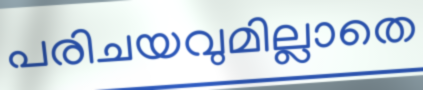
പരിചയവുമില്ലാതെ